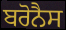
ਬਰੋਨੈਸ